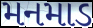
મનમાડ